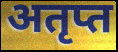
अतृप्त